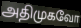
அதிமுகவோ